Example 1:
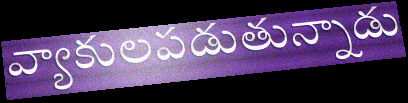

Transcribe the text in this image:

వ్యాకులపడుతున్నాడు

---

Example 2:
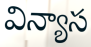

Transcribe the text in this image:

విన్యాస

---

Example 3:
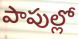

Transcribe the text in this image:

పాపుల్లో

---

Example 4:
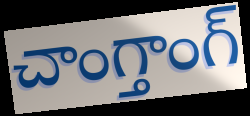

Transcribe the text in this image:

చాంగ్తాంగ్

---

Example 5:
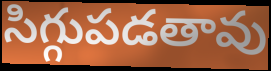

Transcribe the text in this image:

సిగ్గుపడతావు